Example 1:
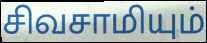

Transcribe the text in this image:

சிவசாமியும்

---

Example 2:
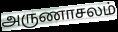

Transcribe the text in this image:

அருணாசலம்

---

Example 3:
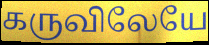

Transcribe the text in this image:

கருவிலேயே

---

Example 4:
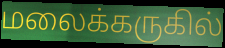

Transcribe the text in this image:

மலைக்கருகில்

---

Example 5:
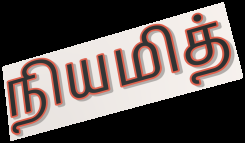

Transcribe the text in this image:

நியமித்